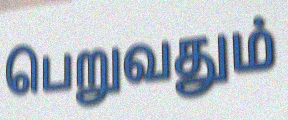
பெறுவதும்